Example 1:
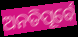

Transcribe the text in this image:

ଅନତିପୂର୍ବେ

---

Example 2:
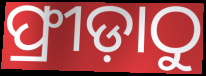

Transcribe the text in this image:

ଫ୍ରୀଡ଼ାଠୁ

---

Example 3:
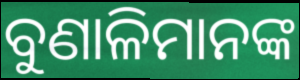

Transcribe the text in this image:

ବୁଣାଳିମାନଙ୍କ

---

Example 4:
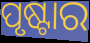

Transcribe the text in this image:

ପୃଷ୍ଟାର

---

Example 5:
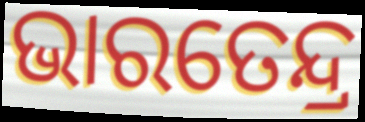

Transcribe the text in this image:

ଭାରତେନ୍ଦ୍ର